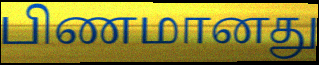
பிணமானது